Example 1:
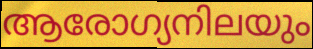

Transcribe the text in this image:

ആരോഗ്യനിലയും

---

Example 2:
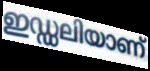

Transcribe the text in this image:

ഇഡ്ഡലിയാണ്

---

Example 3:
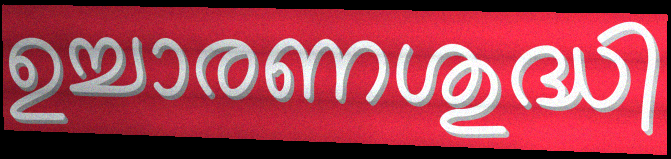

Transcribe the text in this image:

ഉച്ചാരണശുദ്ധി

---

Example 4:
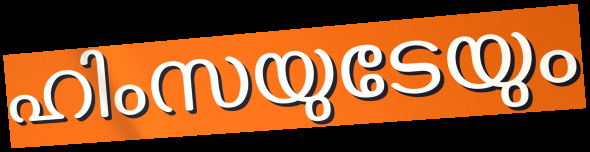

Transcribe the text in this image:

ഹിംസയുടേയും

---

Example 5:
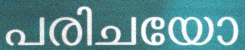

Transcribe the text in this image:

പരിചയോ